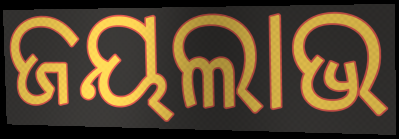
ଜୟଲାଭ